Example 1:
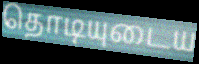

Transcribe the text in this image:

தொடியுடைய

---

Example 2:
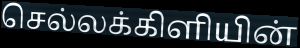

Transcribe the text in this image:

செல்லக்கிளியின்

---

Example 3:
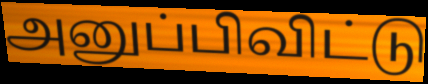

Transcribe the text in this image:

அனுப்பிவிட்டு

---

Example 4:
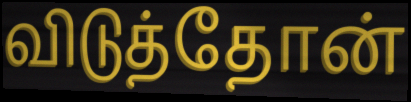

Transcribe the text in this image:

விடுத்தோன்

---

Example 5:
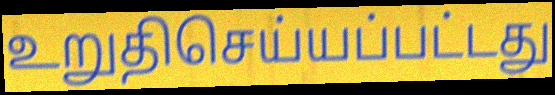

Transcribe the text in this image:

உறுதிசெய்யப்பட்டது